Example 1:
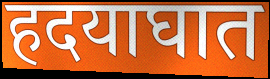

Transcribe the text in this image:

हदयाघात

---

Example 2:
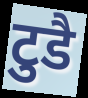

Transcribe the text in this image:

टुडै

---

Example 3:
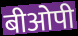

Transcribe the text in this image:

बीओपी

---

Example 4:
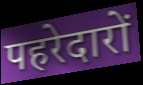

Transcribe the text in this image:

पहरेदारों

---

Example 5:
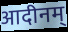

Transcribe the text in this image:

आदीनम्